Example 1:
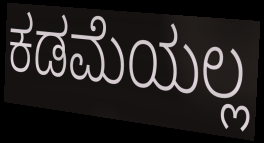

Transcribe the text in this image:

ಕಡಮೆಯಲ್ಲ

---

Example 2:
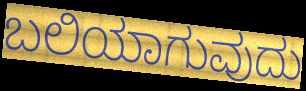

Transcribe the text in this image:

ಬಲಿಯಾಗುವುದು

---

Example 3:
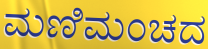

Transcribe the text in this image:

ಮಣಿಮಂಚದ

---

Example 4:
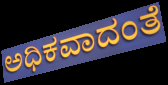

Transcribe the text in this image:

ಅಧಿಕವಾದಂತೆ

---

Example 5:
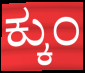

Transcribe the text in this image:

ಕ್ಕುಂ